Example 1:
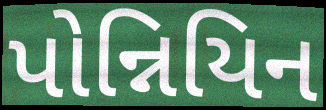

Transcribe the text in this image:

પોન્નિયિન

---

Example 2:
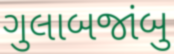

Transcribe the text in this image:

ગુલાબજાંબુ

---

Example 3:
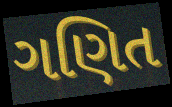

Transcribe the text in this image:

ગણિત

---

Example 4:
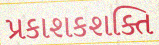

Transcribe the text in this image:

પ્રકાશકશક્તિ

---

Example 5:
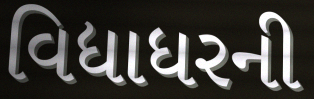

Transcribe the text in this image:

વિદ્યાધરની